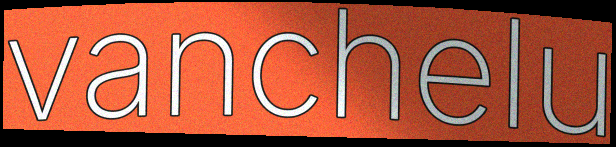
vanchelu